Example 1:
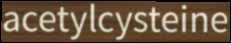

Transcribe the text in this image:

acetylcysteine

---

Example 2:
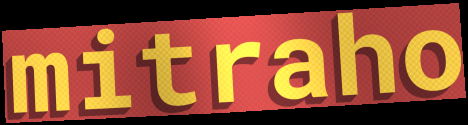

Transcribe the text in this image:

mitraho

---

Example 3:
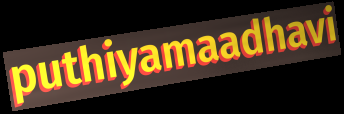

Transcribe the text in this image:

puthiyamaadhavi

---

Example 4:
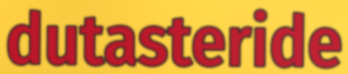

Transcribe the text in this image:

dutasteride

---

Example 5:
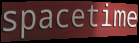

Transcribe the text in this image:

spacetime